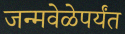
जन्मवेळेपर्यंत